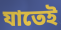
যাতেই